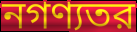
নগণ্যতর